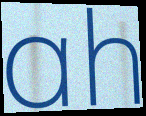
ah